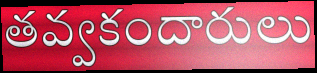
తవ్వకందారులు